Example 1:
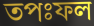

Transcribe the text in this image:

তপঃফল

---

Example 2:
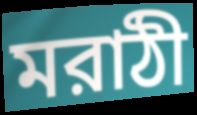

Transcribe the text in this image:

মরাঠী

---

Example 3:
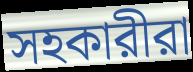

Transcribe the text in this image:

সহকারীরা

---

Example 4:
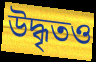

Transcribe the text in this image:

উদ্ধৃতও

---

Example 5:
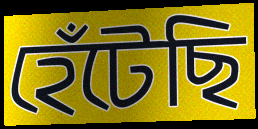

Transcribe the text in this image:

হেঁটেছি